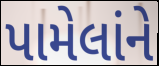
પામેલાંને